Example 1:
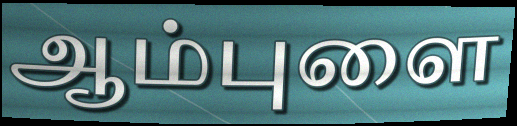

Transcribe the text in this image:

ஆம்புளை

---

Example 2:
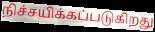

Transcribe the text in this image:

நிச்சயிக்கப்படுகிறது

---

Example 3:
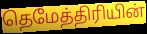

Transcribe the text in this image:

தெமேத்திரியின்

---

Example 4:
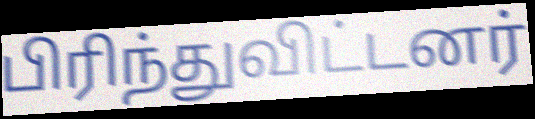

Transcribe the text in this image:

பிரிந்துவிட்டனர்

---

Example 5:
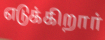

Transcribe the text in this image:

எடுக்கிறார்